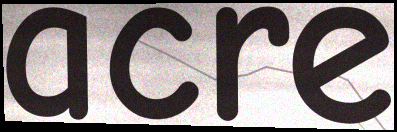
acre